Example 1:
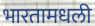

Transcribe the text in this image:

भारतामधली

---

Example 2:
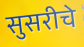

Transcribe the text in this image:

सुसरीचे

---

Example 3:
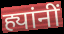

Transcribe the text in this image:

ह्यांनीं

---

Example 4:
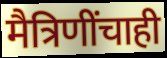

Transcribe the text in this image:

मैत्रिणींचाही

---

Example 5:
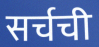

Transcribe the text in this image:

सर्चची